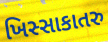
ખિસ્સાકાતરુ